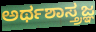
ಅರ್ಥಶಾಸ್ತ್ರಜ್ಞ